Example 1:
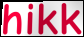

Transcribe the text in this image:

hikk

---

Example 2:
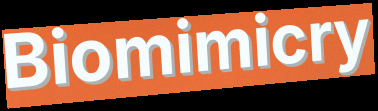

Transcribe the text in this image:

Biomimicry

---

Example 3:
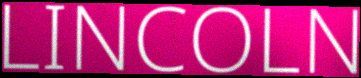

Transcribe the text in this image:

LINCOLN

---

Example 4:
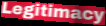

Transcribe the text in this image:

Legitimacy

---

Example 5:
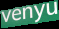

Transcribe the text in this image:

venyu